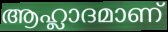
ആഹ്ലാദമാണ്